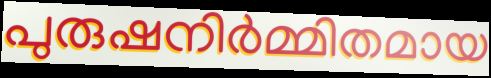
പുരുഷനിർമ്മിതമായ